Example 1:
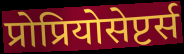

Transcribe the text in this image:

प्रोप्रियोसेप्टर्स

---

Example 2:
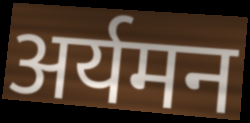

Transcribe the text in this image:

अर्यमन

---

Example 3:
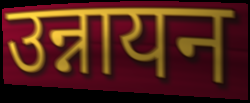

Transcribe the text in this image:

उन्नायन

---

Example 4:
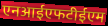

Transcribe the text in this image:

एनआईएफटीईएम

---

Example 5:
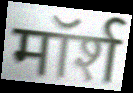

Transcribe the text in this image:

मॉर्श